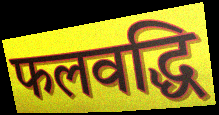
फलवद्धि